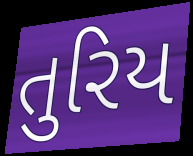
તુરિય